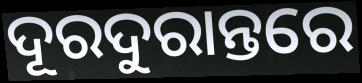
ଦୂରଦୁରାନ୍ତରେ